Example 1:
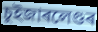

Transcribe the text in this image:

চুইজাৰলেণ্ডৰ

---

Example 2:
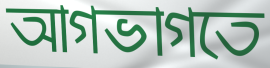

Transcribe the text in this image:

আগভাগতে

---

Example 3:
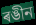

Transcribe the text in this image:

ৰঙীন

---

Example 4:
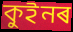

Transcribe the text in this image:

কুইনৰ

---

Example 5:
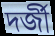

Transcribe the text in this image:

দৰ্জী